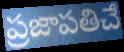
ప్రజాపతిచే